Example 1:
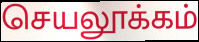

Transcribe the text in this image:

செயலூக்கம்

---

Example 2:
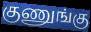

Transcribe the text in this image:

குணுங்கு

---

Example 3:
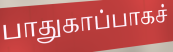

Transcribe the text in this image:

பாதுகாப்பாகச்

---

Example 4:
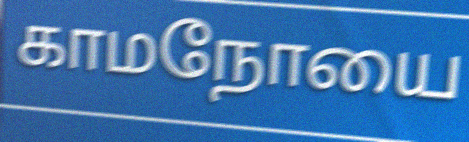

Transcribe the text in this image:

காமநோயை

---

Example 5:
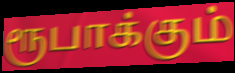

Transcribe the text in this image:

ரூபாக்கும்